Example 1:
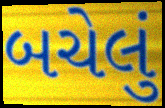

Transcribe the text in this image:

બચેલું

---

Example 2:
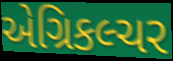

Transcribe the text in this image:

એગ્રિકલ્ચર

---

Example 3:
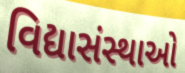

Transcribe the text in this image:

વિદ્યાસંસ્થાઓ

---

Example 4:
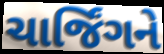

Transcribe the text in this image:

ચાર્જિંગને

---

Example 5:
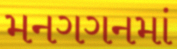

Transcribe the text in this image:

મનગગનમાં